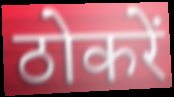
ठोकरें